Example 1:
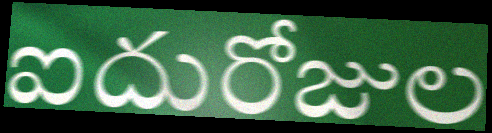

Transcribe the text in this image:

ఐదురోజుల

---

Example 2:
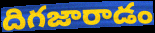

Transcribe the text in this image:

దిగజారాడం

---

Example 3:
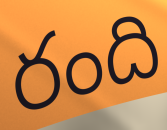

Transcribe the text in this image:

రంది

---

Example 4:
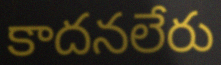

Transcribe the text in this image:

కాదనలేరు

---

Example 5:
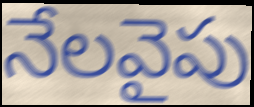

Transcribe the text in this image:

నేలవైపు